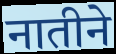
नातीने